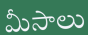
మీసాలు